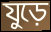
যুড়ে